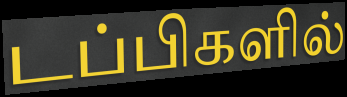
டப்பிகளில்